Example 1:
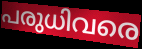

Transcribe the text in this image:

പരുധിവരെ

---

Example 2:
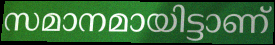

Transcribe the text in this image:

സമാനമായിട്ടാണ്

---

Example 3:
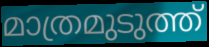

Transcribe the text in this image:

മാത്രമുടുത്ത്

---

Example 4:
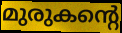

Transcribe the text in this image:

മുരുകന്റെ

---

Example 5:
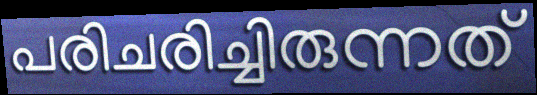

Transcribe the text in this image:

പരിചരിച്ചിരുന്നത്